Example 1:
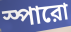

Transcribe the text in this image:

স্পারো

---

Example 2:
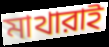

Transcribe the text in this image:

মাথারাই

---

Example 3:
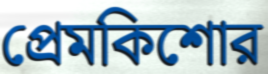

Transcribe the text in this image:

প্রেমকিশোর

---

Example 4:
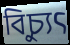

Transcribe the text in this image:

বিচ্যুৎ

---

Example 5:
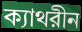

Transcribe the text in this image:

ক্যাথরীন